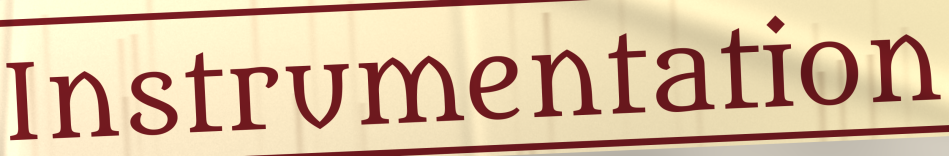
Instrumentation